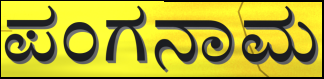
ಪಂಗನಾಮ